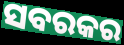
ସବରକର